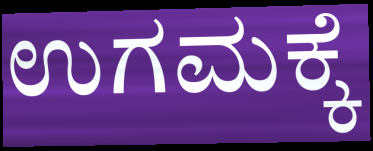
ಉಗಮಕ್ಕೆ